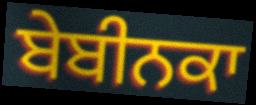
ਬੇਬੀਨਕਾ